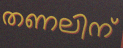
തണലിന്